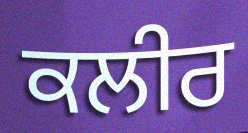
ਕਲੀਰ